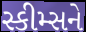
સ્કીમ્સને